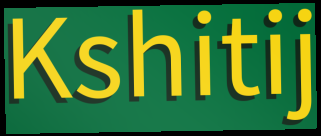
Kshitij